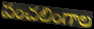
పంచలింగాల